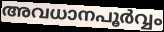
അവധാനപൂർവ്വം